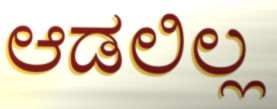
ಆಡಲಿಲ್ಲ